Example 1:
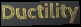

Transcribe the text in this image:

Ductility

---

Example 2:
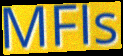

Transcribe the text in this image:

MFIs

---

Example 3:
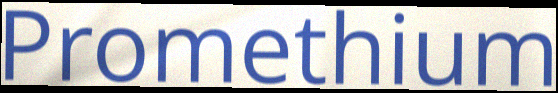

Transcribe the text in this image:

Promethium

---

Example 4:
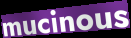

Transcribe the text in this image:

mucinous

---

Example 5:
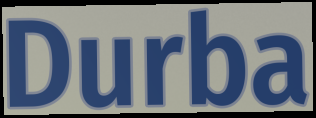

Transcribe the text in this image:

Durba